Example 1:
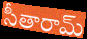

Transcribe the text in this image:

సీతారామ్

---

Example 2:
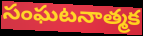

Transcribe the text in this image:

సంఘటనాత్మక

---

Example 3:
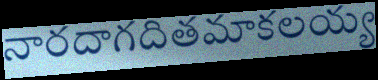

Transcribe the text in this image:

నారదాగదితమాకలయ్య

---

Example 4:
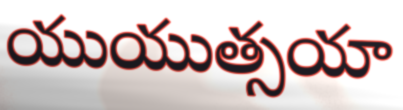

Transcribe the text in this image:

యుయుత్సయా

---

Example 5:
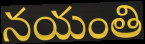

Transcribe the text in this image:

నయంతి